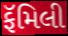
ફૅમિલી